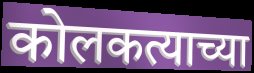
कोलकत्याच्या